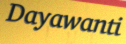
Dayawanti